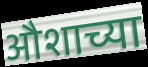
औशाच्या